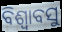
ବିଶ୍ୱାବସୁ